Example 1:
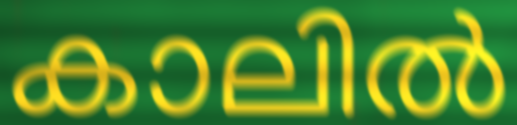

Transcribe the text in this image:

കാലിൽ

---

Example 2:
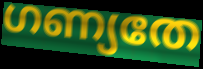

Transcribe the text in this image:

ഗണ്യതേ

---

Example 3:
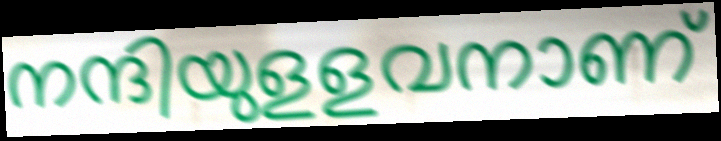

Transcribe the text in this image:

നന്ദിയുളളവനാണ്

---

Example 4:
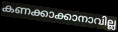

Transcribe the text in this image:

കണക്കാക്കാനാവില്ല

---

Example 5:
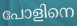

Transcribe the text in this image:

പോളിനെ